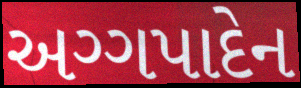
અગ્ગપાદેન